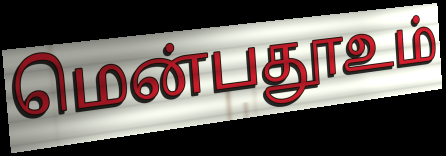
மென்பதூஉம்